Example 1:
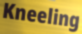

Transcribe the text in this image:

Kneeling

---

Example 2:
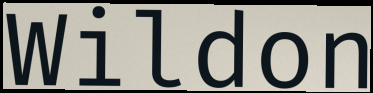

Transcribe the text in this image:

Wildon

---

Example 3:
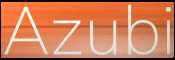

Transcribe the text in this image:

Azubi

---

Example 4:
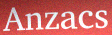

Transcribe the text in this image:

Anzacs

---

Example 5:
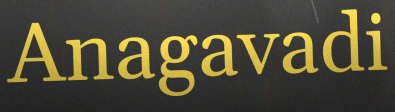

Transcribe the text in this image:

Anagavadi